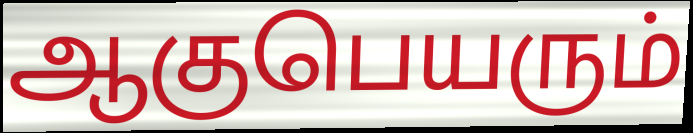
ஆகுபெயரும்